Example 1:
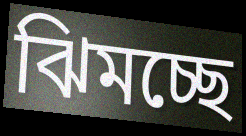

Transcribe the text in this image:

ঝিমচ্ছে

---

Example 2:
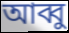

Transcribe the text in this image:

আব্বু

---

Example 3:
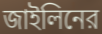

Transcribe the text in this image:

জাইলিনের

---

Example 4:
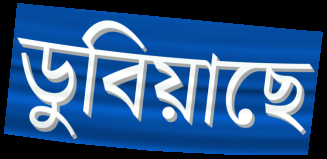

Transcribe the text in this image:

ডুবিয়াছে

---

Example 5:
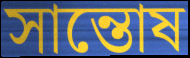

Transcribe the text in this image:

সান্তোষ